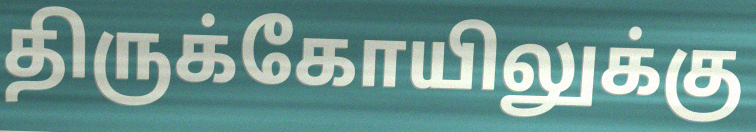
திருக்கோயிலுக்கு